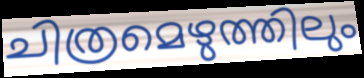
ചിത്രമെഴുത്തിലും